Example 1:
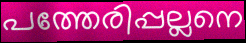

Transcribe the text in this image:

പത്തേരിപ്പല്ലനെ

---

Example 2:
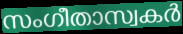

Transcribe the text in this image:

സംഗീതാസ്വകർ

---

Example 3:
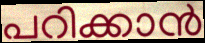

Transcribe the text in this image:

പറിക്കാൻ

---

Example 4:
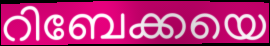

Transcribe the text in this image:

റിബേക്കയെ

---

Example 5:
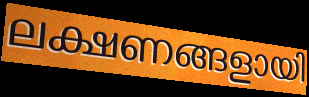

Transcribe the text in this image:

ലക്ഷണങ്ങളായി